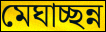
মেঘাচ্ছন্ন